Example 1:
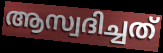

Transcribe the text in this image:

ആസ്വദിച്ചത്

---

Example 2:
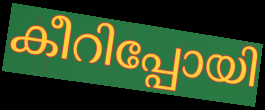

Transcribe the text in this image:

കീറിപ്പോയി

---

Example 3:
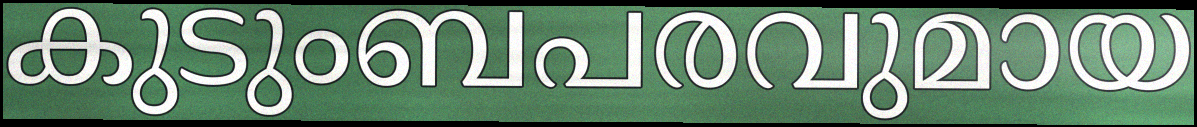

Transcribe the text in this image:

കുടുംബപരവുമായ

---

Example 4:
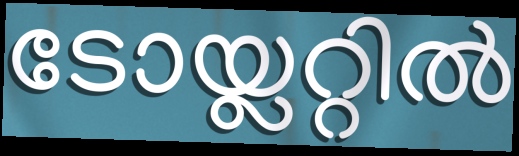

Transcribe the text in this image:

ടോയ്ലറ്റിൽ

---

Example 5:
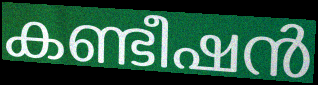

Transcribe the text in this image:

കണ്ടീഷൻ